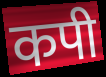
कपी